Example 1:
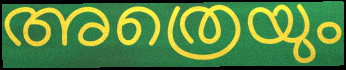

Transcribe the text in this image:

അത്രെയും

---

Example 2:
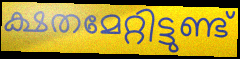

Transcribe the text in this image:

ക്ഷതമേറ്റിട്ടുണ്ട്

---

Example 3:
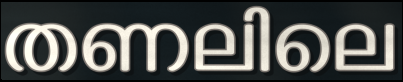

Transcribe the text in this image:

തണലിലെ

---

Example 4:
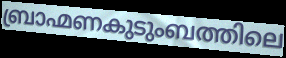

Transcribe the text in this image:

ബ്രാഹ്മണകുടുംബത്തിലെ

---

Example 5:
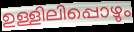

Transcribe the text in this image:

ഉള്ളിലിപ്പൊഴും